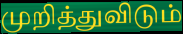
முறித்துவிடும்